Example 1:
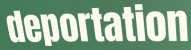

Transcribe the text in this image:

deportation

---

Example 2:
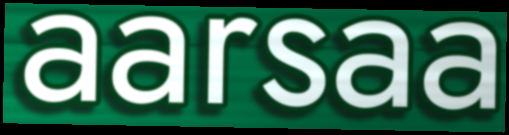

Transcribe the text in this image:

aarsaa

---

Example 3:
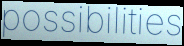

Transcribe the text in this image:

possibilities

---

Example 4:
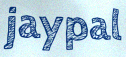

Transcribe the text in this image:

jaypal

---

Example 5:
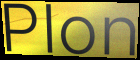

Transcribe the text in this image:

Plon